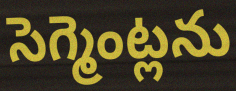
సెగ్మెంట్లను